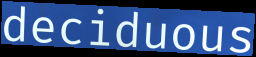
deciduous